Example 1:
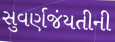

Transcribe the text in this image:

સુવર્ણજંયતીની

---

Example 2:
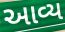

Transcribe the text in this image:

આવ્ય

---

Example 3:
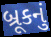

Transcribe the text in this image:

બ્રૂકનું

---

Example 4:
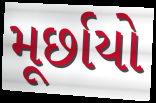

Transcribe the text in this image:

મૂર્છાયો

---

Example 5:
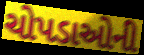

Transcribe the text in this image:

ચોપડાઓની